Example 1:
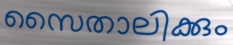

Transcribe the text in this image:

സൈതാലിക്കും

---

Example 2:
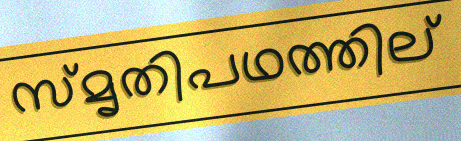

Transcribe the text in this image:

സ്മൃതിപഥത്തില്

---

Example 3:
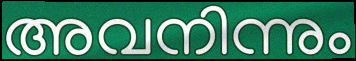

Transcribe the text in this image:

അവനിന്നും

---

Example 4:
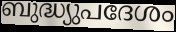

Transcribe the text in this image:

ബുദ്ധ്യുപദേശം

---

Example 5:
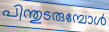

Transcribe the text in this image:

പിന്തുടരുമ്പോൾ